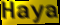
Haya